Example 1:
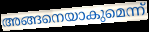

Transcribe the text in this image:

അങ്ങനെയാകുമെന്ന്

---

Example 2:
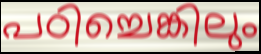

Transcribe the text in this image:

പഠിച്ചെങ്കിലും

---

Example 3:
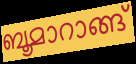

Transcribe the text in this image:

ബൂമാറാങ്ങ്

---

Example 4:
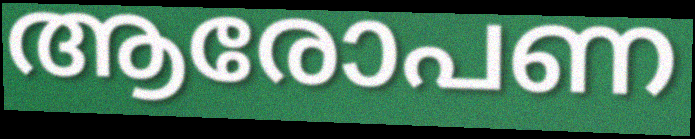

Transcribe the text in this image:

ആരോപണ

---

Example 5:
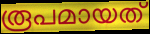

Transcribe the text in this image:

രൂപമായത്